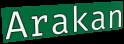
Arakan